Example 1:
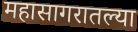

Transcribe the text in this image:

महासागरातल्या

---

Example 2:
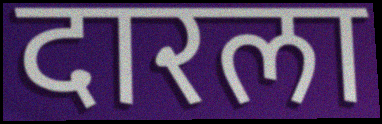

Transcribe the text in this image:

दारला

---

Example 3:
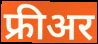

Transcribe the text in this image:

फ्रीअर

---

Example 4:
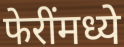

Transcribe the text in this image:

फेरींमध्ये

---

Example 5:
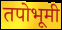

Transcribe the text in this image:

तपोभूमी